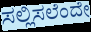
ಸಲ್ಲಿಸಲೆಂದೇ